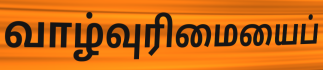
வாழ்வுரிமையைப்